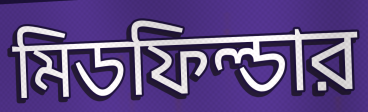
মিডফিল্ডার